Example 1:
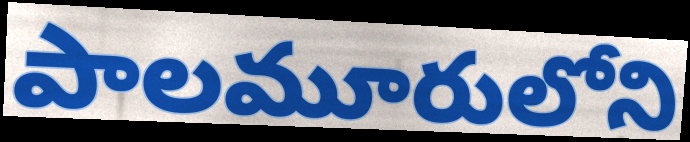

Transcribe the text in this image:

పాలమూరులోని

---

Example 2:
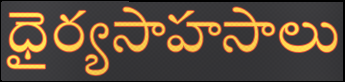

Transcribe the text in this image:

ధైర్యసాహసాలు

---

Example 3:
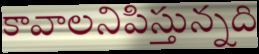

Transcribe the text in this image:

కావాలనిపిస్తున్నది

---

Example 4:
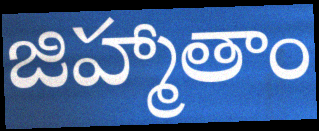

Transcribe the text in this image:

జిహ్మాతాం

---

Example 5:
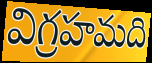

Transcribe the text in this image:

విగ్రహమది